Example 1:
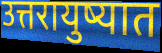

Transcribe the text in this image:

उत्तरायुष्यात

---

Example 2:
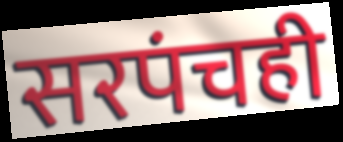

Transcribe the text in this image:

सरपंचही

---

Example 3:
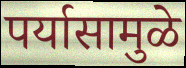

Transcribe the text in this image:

पर्यासामुळे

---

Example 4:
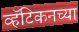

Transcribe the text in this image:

व्हॅटिकनच्या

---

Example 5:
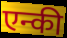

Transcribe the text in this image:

एन्की